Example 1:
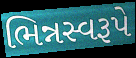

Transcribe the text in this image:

ભિન્નસ્વરૂપે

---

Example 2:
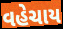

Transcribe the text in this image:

વહેચાય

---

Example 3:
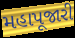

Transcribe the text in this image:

મહાપૂજારી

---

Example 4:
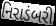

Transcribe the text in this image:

નિરાડંબરી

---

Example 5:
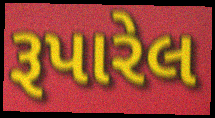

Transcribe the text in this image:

રૂપારેલ